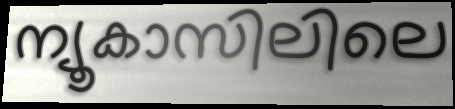
ന്യൂകാസിലിലെ